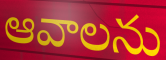
ఆవాలను